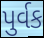
પુર્વક